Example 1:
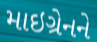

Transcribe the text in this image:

માઇગ્રેનને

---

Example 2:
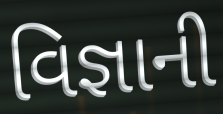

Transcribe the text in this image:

વિજ્ઞાની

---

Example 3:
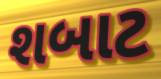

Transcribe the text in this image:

શબાટ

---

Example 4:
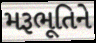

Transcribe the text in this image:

મરૂભૂતિને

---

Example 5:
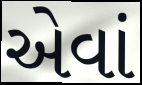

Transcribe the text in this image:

એવાં